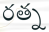
రత్న